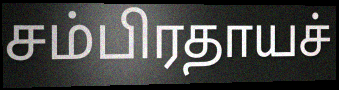
சம்பிரதாயச்